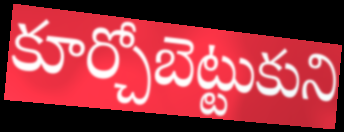
కూర్చోబెట్టుకుని